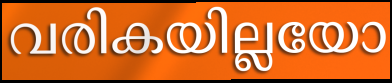
വരികയില്ലയോ